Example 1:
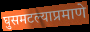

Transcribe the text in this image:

घुसमटल्याप्रमाणे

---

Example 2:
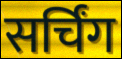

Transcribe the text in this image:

सर्चिंग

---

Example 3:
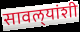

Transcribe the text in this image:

सावल्यांशी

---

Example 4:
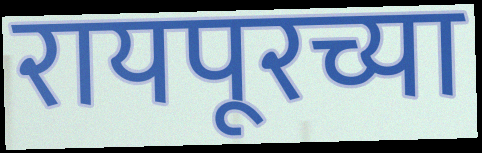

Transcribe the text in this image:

रायपूरच्या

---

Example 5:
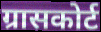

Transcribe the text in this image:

ग्रासकोर्ट